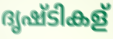
ദൃഷ്ടികള്